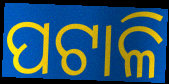
ପଟାଳି